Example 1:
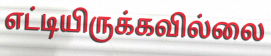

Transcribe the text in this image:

எட்டியிருக்கவில்லை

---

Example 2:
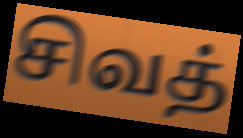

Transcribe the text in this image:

சிவத்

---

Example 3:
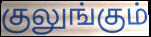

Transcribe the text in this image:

குலுங்கும்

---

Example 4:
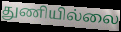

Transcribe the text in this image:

துணியில்லை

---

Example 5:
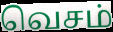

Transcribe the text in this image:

வெசம்